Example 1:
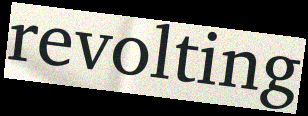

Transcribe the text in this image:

revolting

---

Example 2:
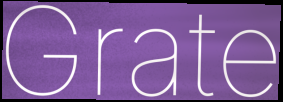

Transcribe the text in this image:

Grate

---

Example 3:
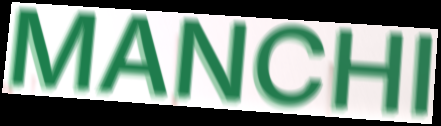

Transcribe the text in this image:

MANCHI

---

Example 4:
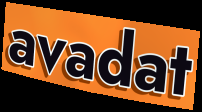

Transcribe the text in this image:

avadat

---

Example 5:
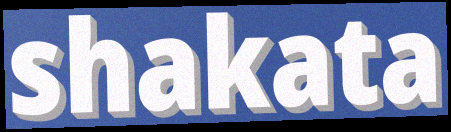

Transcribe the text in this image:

shakata